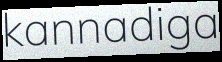
kannadiga